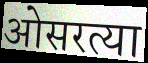
ओसरत्या